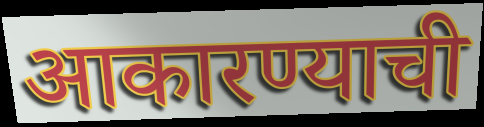
आकारण्याची